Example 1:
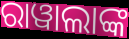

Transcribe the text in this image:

ରାୱାଲାଙ୍କ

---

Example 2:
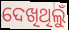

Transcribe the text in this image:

ଦେଖିଥିଲୁଁ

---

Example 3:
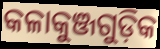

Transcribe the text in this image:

କଳାକୁଞ୍ଜଗୁଡ଼ିକ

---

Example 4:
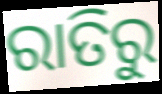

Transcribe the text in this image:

ରାତିରୁ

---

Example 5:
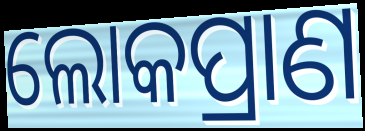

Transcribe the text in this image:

ଲୋକପ୍ରାଣ